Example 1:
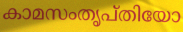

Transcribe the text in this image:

കാമസംതൃപ്തിയോ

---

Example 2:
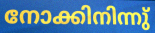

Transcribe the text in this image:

നോക്കിനിന്നു്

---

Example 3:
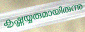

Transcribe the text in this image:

കൃഷ്ണയ്യരുമായിരുന്നു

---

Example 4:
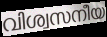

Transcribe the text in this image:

വിശ്വസനീയ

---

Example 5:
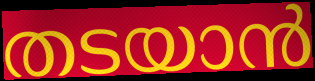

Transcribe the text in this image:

തടയാൻ